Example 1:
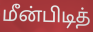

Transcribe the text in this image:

மீன்பிடித்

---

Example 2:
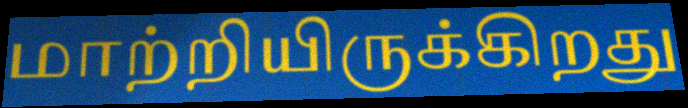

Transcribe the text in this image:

மாற்றியிருக்கிறது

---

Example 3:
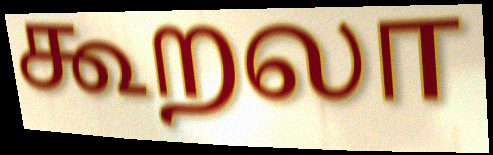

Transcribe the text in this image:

கூறலா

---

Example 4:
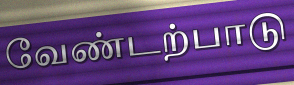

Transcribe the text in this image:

வேண்டற்பாடு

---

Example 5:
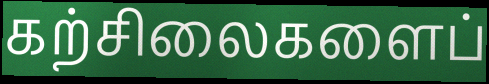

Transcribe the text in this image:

கற்சிலைகளைப்